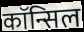
कॉन्सिल